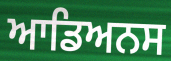
ਆਡਿਅਨਸ